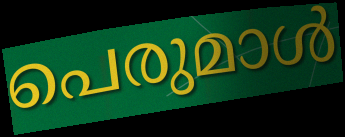
പെരുമാൾ